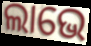
ଲାଭେ